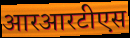
आरआरटीएस